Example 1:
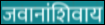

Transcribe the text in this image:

जवानांशिवाय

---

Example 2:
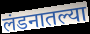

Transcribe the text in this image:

लंडनातल्या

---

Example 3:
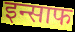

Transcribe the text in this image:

इन्साफ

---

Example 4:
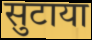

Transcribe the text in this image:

सुटाया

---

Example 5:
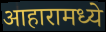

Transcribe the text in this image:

आहारामध्ये